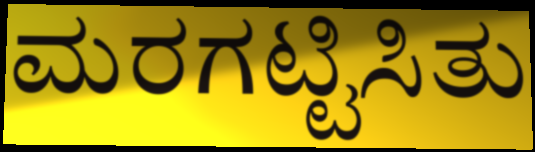
ಮರಗಟ್ಟಿಸಿತು